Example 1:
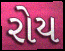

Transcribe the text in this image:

રોય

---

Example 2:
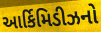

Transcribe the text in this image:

આર્કિમિડીઝનો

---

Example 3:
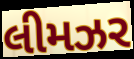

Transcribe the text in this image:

લીમઝર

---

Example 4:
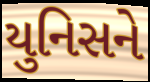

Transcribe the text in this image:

યુનિસને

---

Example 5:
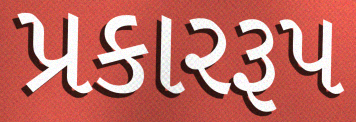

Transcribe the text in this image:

પ્રકારરૂપ